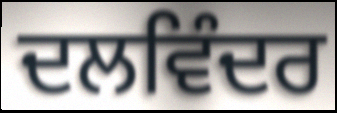
ਦਲਵਿੰਦਰ